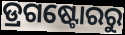
ଡ୍ରଗଷ୍ଟୋରରୁ